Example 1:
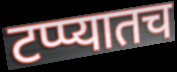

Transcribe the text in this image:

टप्प्यातच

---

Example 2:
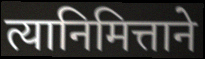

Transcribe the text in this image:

त्यानिमित्ताने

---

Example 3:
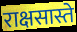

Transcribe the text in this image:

राक्षसास्ते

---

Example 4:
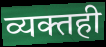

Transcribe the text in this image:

व्यक्तही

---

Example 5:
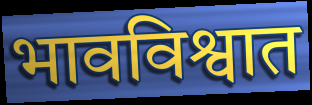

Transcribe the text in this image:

भावविश्वात